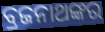
ବ୍ରଜନାଥଙ୍କର